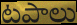
టపాలు